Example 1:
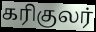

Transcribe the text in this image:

கரிகுலர்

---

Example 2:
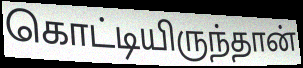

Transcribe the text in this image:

கொட்டியிருந்தான்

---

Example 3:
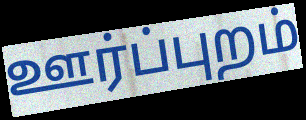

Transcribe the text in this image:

ஊர்ப்புறம்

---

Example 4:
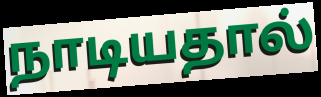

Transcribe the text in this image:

நாடியதால்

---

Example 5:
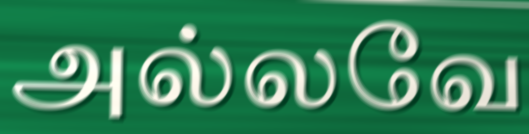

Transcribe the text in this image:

அல்லவே